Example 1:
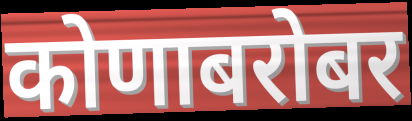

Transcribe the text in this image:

कोणाबरोबर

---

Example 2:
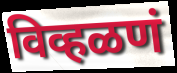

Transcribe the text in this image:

विव्हळणं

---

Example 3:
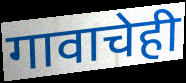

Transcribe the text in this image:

गावाचेही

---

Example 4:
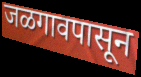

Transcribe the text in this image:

जळगावपासून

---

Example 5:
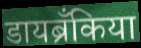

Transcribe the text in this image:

डायब्रँकिया